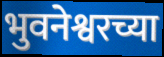
भुवनेश्वरच्या